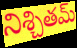
నిశ్చితమ్